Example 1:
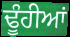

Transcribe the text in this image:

ਢੂੰਹੀਆਂ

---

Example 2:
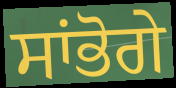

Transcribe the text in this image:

ਸਾਂਭੋਗੇ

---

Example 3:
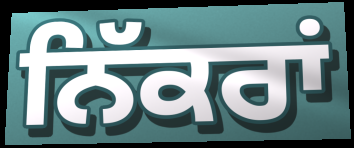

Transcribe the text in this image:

ਨਿੱਕਰਾਂ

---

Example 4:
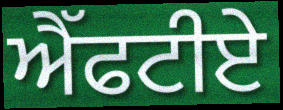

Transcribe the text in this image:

ਐੱਫਟੀਏ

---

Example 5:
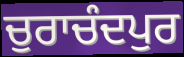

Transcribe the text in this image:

ਚੁਰਾਚੰਦਪੁਰ